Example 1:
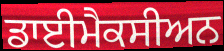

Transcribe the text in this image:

ਡਾਈਮੈਕਸੀਅਨ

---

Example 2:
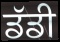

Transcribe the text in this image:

ਡੱਡੀ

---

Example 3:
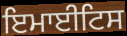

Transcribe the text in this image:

ਇਮਾਈਟਿਸ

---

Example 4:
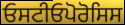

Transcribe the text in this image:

ਓਸਟੀਓਪੋਰੋਸਿਸ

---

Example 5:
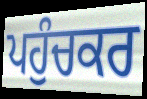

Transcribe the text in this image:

ਪਹੁੰਚਕਰ